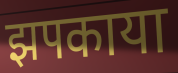
झपकाया